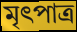
মৃৎপাত্র